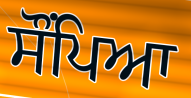
ਸੌਂਪਿਆ